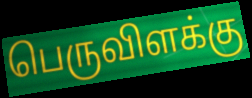
பெருவிளக்கு